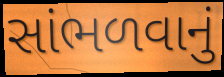
સાંભળવાનું